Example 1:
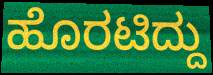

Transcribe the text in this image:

ಹೊರಟಿದ್ದು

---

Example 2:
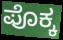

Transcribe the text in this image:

ಪೊಕ್ಕ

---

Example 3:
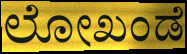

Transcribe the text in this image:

ಲೋಖಂಡೆ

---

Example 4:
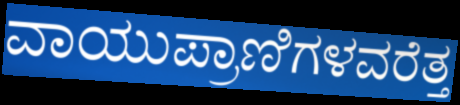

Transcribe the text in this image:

ವಾಯುಪ್ರಾಣಿಗಳವರೆತ್ತ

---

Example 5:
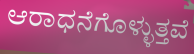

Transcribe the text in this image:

ಆರಾಧನೆಗೊಳ್ಳುತ್ತವೆ